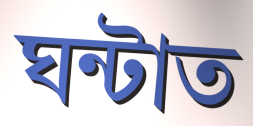
ঘন্টাত